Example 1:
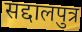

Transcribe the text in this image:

सद्दालपुत्र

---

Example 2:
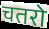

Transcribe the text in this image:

चतरो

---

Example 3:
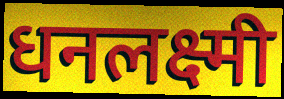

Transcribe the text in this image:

धनलक्ष्मी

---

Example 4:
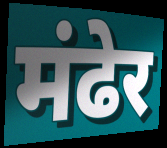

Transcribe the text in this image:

मंढेर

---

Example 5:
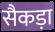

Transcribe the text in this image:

सैकड़ा